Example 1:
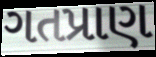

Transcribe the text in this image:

ગતપ્રાણ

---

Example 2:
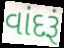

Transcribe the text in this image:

વાંદરૂં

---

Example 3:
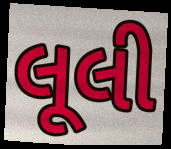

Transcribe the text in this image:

લૂલી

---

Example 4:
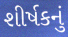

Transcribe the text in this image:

શીર્ષકનું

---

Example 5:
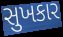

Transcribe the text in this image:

સુખકાર